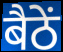
बैठें